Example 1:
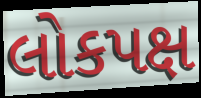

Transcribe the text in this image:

લોકપક્ષ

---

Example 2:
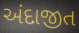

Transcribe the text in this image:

અંદાજીત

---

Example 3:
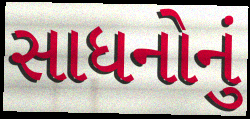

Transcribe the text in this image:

સાધનોનું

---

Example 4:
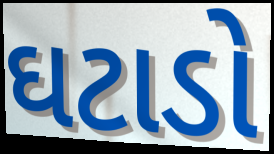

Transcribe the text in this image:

ઘટાડો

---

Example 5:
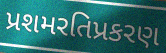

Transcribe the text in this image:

પ્રશમરતિપ્રકરણ